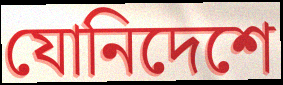
যোনিদেশে